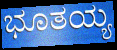
ಭೂತಯ್ಯ